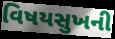
વિષયસુખની